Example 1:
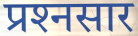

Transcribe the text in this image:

प्रश्‍नसार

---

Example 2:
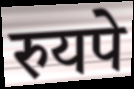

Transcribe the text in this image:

रुयपे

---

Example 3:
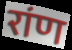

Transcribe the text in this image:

रांण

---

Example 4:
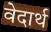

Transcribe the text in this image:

वेदार्थ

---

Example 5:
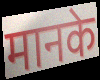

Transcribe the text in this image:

मानके